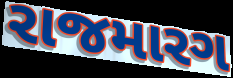
રાજમારગ